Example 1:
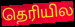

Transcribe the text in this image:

தெரியில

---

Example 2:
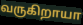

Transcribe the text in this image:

வருகிறாயா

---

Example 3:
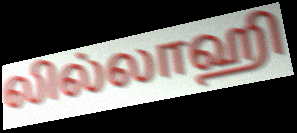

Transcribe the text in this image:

லில்லாஹி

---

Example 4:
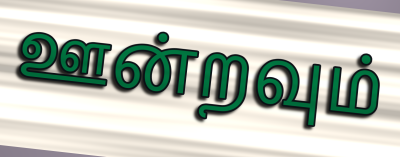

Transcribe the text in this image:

ஊன்றவும்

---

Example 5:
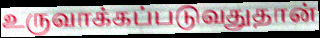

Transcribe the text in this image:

உருவாக்கப்படுவதுதான்